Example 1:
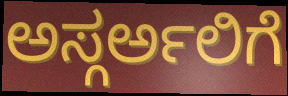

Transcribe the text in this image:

ಅಸ್ಗರ್ಅಲಿಗೆ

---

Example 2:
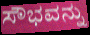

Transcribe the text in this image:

ಸೌಭವನ್ನು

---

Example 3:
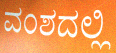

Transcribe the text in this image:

ವಂಶದಲ್ಲಿ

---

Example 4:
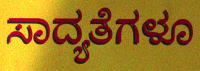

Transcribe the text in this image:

ಸಾದ್ಯತೆಗಳೂ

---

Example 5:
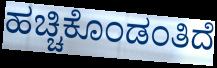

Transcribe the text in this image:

ಹಚ್ಚಿಕೊಂಡಂತಿದೆ